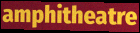
amphitheatre